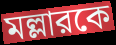
মল্লারকে